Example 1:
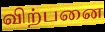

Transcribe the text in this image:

விற்பனை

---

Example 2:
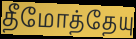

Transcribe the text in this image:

தீமோத்தேயு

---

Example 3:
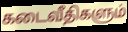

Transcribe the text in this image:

கடைவீதிகளும்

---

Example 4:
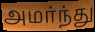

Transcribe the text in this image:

அமர்ந்து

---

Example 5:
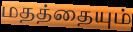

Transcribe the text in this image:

மதத்தையும்